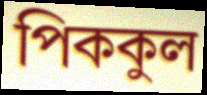
পিককুল